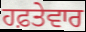
ਹਫ਼ਤੇਵਾਰ